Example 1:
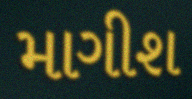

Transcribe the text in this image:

માગીશ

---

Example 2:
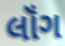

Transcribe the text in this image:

લૉંગ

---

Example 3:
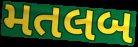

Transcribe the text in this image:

મતલબ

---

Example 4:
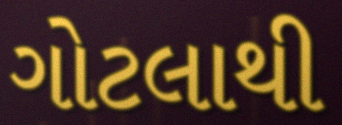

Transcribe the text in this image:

ગોટલાથી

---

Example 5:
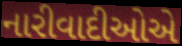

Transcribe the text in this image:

નારીવાદીઓએ